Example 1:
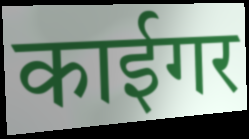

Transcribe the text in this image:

काईगर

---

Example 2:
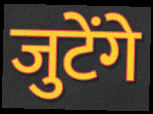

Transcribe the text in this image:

जुटेंगे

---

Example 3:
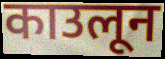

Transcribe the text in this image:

काउलून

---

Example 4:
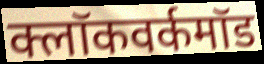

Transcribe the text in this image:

क्लॉकवर्कमॉड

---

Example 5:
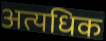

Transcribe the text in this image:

अत्‍यधिक